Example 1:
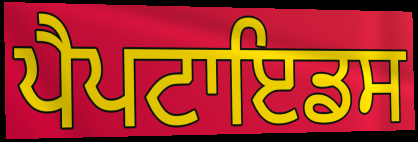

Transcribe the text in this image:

ਪੈਪਟਾਇਡਸ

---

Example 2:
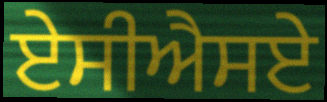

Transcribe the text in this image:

ਏਸੀਐਸਏ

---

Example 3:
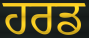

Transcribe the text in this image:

ਹਰਡ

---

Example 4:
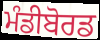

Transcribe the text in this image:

ਮੰਡੀਬੋਰਡ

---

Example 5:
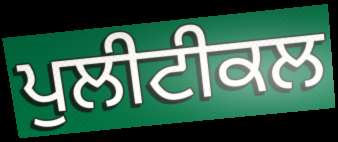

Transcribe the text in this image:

ਪੁਲੀਟੀਕਲ